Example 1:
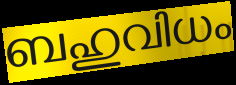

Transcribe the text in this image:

ബഹുവിധം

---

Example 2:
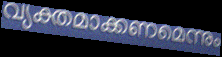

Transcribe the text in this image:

വ്യക്തമാക്കണമെന്നും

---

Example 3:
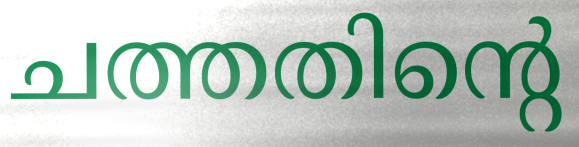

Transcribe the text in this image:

ചത്തതിന്റെ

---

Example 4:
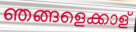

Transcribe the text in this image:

ഞങ്ങളെക്കാള്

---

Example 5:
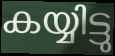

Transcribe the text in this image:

കയ്യിട്ടു